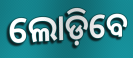
ଲୋଡ଼ିବେ